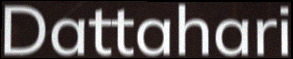
Dattahari